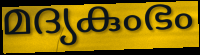
മദ്യകുംഭം